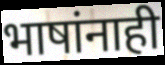
भाषांनाही